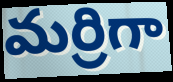
మర్రిగా